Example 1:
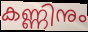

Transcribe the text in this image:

കണ്ണിനും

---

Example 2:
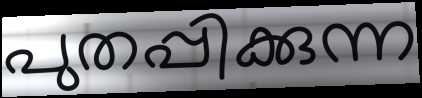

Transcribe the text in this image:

പുതപ്പിക്കുന്ന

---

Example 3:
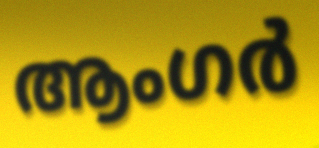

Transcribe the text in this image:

ആംഗർ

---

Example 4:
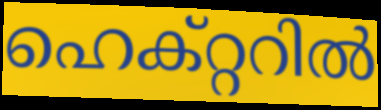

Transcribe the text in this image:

ഹെക്റ്ററിൽ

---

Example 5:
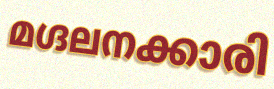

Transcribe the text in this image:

മഗ്ദലനക്കാരി